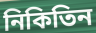
নিকিতিন